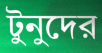
টুনুদের